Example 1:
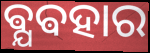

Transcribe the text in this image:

ଵ୍ଯଵହାର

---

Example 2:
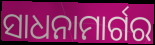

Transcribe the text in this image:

ସାଧନାମାର୍ଗର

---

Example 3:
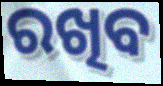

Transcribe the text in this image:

ରଖିବ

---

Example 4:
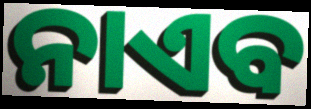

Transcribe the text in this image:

ନାଏବ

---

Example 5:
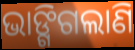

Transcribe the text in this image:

ଭାଙ୍ଗିଗଲାଣି